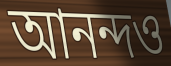
আনন্দও